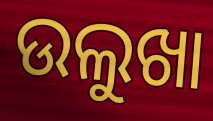
ଉଲୁଖା